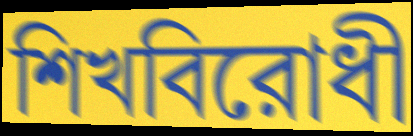
শিখবিরোধী